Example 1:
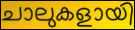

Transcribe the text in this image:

ചാലുകളായി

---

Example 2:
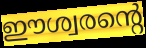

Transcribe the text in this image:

ഈശ്വരന്റെ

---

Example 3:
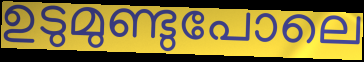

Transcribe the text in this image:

ഉടുമുണ്ടുപോലെ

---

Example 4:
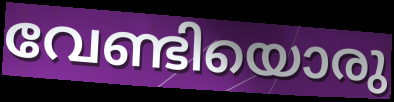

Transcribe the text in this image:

വേണ്ടിയൊരു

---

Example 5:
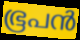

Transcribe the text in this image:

ഭൂപൻ